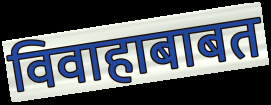
विवाहाबाबत